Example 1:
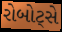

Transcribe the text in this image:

રોબોટ્સે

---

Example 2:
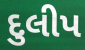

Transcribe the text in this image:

દુલીપ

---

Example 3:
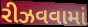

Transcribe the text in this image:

રીઝવવામાં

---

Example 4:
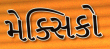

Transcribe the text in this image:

મેક્સિકો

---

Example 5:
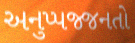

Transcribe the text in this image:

અનુપ્પજ્જનતો